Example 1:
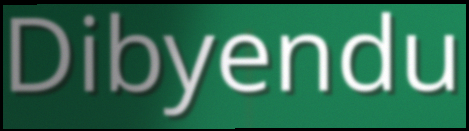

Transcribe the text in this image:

Dibyendu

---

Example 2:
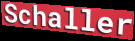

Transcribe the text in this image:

Schaller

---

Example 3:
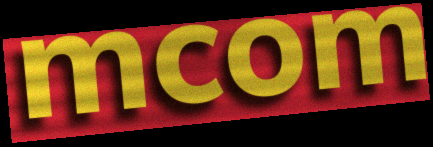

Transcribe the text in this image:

mcom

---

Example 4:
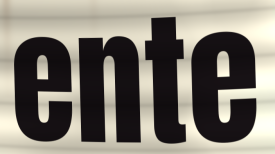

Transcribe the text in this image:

ente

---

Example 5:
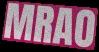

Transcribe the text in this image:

MRAO